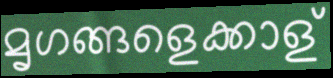
മൃഗങ്ങളെക്കാള്